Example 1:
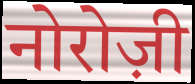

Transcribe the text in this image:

नोरोज़ी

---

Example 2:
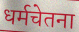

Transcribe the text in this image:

धर्मचेतना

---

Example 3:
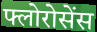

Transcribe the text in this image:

फ्लोरोसेंस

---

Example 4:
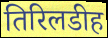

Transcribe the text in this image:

तिरिलडीह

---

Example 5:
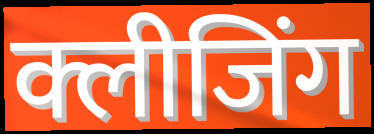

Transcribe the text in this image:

क्‍लीजिंग